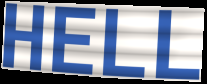
HELL